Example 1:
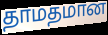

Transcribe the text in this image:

தாமதமான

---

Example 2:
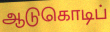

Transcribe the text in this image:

ஆடுகொடிப்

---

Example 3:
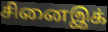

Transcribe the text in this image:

சினைஇக்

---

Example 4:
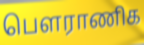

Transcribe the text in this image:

பௌராணிக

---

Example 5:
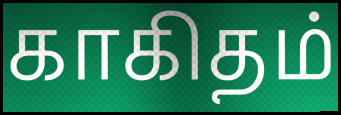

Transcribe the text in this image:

காகிதம்